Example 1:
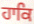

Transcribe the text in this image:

ਹਾਕਿ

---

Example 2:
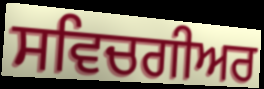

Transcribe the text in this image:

ਸਵਿਚਗੀਅਰ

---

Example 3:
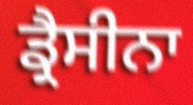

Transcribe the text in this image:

ਡ੍ਰੈਸੀਨਾ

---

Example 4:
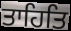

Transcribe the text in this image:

ਤਾਹਿਤਿ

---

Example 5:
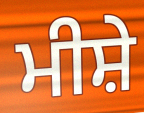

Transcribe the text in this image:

ਮੀਸ਼ੇ